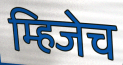
म्हिजेच